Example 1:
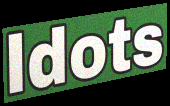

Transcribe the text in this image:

ldots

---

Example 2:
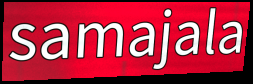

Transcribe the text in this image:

samajala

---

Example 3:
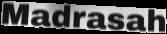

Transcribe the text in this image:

Madrasah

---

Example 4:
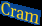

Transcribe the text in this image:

Cram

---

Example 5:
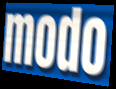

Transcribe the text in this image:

modo